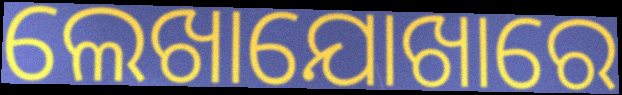
ଲେଖାଯୋଖାରେ